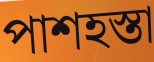
পাশহস্তা